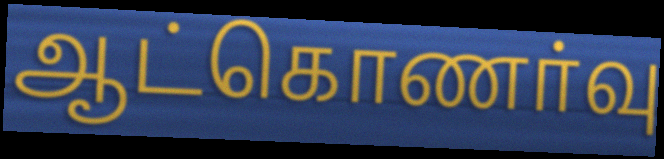
ஆட்கொணர்வு